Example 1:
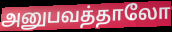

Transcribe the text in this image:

அனுபவத்தாலோ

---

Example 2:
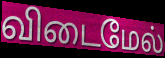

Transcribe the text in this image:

விடைமேல்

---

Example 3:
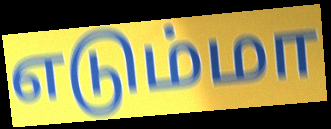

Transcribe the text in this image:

எடும்மா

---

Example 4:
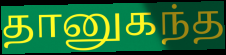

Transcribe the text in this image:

தானுகந்த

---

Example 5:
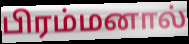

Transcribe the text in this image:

பிரம்மனால்